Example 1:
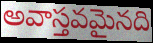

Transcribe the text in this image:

అవాస్తవమైనది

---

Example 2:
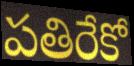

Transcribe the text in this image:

పతిరేకో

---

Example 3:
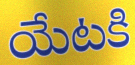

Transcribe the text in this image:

యేటకి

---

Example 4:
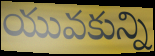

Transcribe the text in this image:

యువకున్ని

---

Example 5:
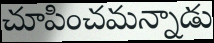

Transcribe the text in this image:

చూపించమన్నాడు